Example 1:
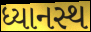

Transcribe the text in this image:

ધ્યાનસ્થ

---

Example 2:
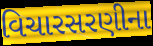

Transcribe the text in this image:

વિચારસરણીના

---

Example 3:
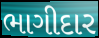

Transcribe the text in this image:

ભાગીદાર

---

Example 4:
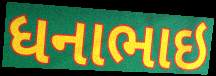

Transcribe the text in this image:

ધનાભાઇ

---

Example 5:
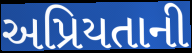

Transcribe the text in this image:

અપ્રિયતાની